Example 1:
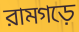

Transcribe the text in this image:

রামগড়ে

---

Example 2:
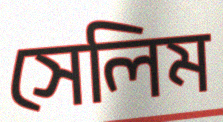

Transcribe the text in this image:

সেলিম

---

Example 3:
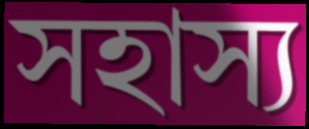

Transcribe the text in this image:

সহাস্য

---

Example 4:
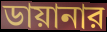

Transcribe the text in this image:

ডায়ানার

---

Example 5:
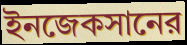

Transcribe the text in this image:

ইনজেকসানের